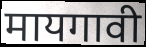
मायगावी